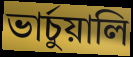
ভার্চুয়ালি